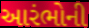
આરંભોની